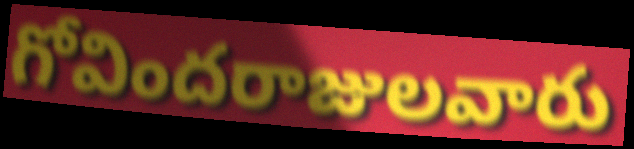
గోవిందరాజులవారు